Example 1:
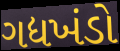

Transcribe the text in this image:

ગદ્યખંડો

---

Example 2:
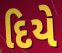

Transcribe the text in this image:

દિયે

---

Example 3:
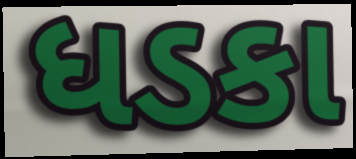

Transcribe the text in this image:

ધડકા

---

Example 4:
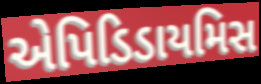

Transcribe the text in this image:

એપિડિડાયમિસ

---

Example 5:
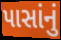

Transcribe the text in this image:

પાસાંનું